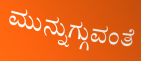
ಮುನ್ನುಗ್ಗುವಂತೆ